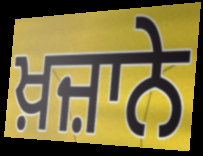
ਖ਼ਜ਼ਾਨੇ